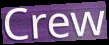
Crew